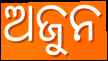
ଅଜୁନ